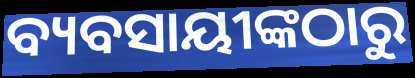
ବ୍ୟବସାୟୀଙ୍କଠାରୁ